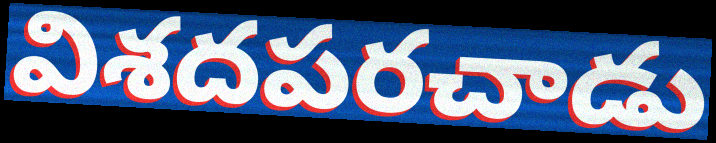
విశదపరచాడు